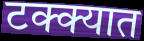
टक्क्यात